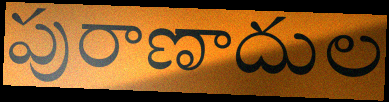
పురాణాదుల